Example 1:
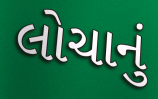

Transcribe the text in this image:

લોચાનું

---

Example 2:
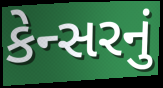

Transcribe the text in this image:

કેન્સરનું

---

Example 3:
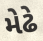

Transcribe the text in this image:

મેઢે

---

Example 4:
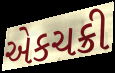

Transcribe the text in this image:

એકચક્રી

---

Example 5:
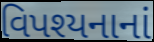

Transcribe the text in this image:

વિપશ્યનાનાં